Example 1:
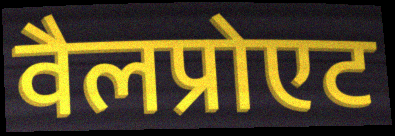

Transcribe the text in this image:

वैलप्रोएट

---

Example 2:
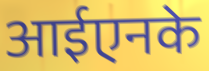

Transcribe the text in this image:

आईएनके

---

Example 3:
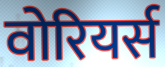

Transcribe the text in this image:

वोरियर्स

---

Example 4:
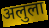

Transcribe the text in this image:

अलुला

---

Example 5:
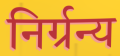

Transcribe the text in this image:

निर्ग्रन्य